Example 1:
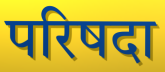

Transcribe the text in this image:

परिषदा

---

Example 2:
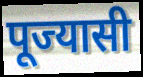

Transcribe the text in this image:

पूज्यासी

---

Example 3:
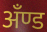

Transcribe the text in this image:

अँण्ड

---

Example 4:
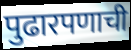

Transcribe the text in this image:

पुढारपणाची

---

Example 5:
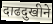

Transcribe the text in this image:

दाढदुखीने